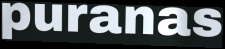
puranas